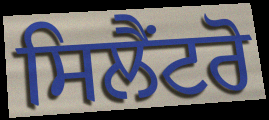
ਸਿਲੈਂਟਰੋ